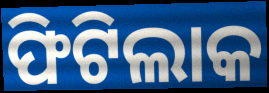
ଫିଟିଲାକ